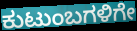
ಕುಟುಂಬಗಳಿಗೇ